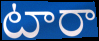
టారా